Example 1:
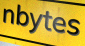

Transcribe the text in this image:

nbytes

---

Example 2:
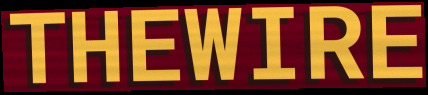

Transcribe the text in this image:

THEWIRE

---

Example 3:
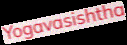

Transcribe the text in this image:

Yogavasishtha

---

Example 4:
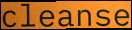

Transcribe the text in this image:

cleanse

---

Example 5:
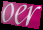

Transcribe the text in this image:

oer